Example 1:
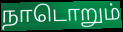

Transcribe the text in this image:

நாடொறும்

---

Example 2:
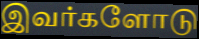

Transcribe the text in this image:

இவர்களோடு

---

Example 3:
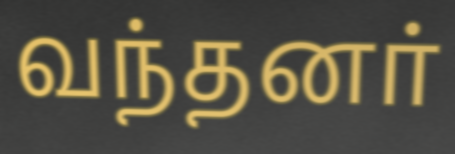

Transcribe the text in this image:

வந்தனர்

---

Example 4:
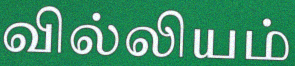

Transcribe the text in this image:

வில்லியம்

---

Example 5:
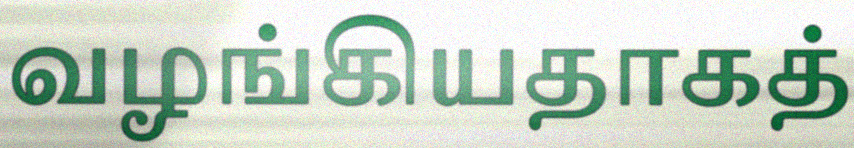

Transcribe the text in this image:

வழங்கியதாகத்